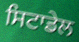
ਸਿਟਾਡੇਲ